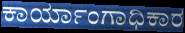
ಕಾರ್ಯಾಂಗಾಧಿಕಾರ